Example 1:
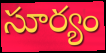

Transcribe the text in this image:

సూర్యం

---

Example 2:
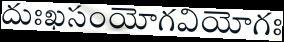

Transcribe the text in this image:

దుఃఖసంయోగవియోగః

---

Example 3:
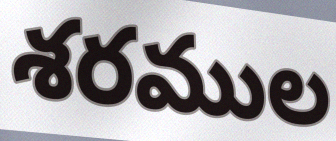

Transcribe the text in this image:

శరముల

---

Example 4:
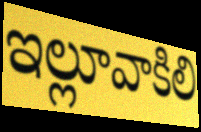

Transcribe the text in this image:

ఇల్లూవాకిలి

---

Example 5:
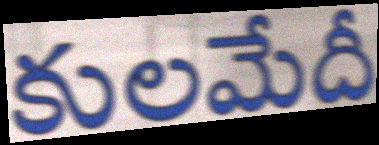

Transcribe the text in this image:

కులమేదీ